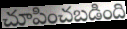
చూపించబడింది